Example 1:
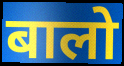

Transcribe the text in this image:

बालो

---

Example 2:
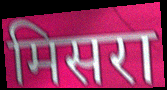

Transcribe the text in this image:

मिसरा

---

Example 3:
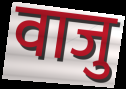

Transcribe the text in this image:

वाजु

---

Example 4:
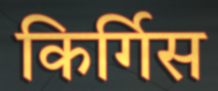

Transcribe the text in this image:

किर्गिस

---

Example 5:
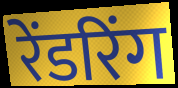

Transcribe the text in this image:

रेंडरिंग